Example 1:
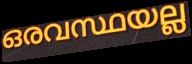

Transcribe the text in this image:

ഒരവസ്ഥയല്ല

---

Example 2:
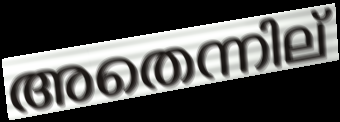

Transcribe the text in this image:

അതെന്നില്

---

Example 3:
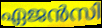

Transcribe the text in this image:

ഏജൻസി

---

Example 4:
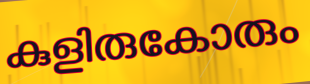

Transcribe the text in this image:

കുളിരുകോരും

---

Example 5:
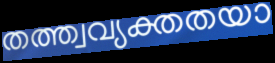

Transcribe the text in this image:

തത്ത്വവ്യക്തതയാ